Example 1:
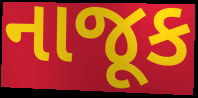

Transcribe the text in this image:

નાજૂક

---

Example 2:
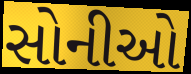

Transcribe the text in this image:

સોનીઓ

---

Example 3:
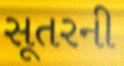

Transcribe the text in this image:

સૂતરની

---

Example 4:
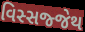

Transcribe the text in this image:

વિસ્સજ્જેથ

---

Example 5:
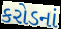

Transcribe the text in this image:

કરોડનાં